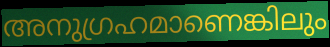
അനുഗ്രഹമാണെങ്കിലും